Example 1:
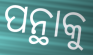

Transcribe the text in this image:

ପନ୍ଥାକୁ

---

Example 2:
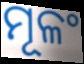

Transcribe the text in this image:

ମୂଳଂ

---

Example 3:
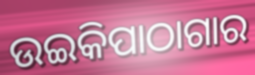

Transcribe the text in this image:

ଉଇକିପାଠାଗାର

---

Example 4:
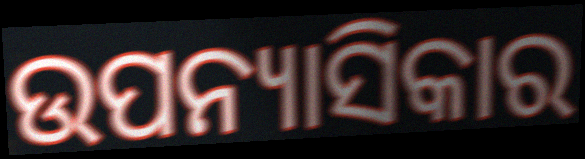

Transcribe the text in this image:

ଉପନ୍ୟାସିକାର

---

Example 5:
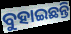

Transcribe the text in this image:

ବୁହାଇଛନ୍ତି